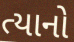
ત્યાનો